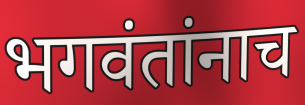
भगवंतांनाच